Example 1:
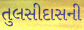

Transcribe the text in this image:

તુલસીદાસની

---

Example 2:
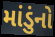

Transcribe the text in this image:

માંડુંનો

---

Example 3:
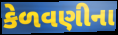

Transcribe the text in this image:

કેળવણીના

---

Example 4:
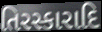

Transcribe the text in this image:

તિરસ્કારાદિ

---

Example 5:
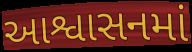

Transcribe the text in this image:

આશ્વાસનમાં